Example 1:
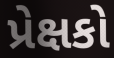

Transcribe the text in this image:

પ્રેક્ષકો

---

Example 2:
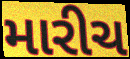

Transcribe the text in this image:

મારીચ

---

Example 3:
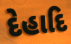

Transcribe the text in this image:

દેહાદિ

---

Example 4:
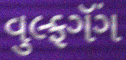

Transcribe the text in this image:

વુલ્ફગૅંગ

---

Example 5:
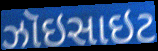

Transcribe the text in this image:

ઝૉઇસાઇટ